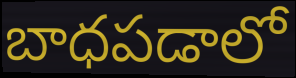
బాధపడాలో